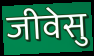
जीवेसु